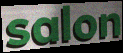
salon